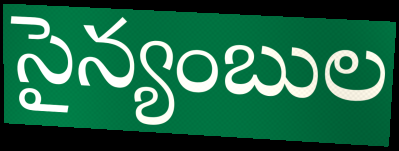
సైన్యంబుల